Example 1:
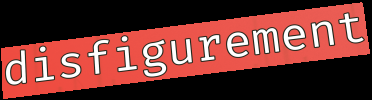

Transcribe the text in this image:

disfigurement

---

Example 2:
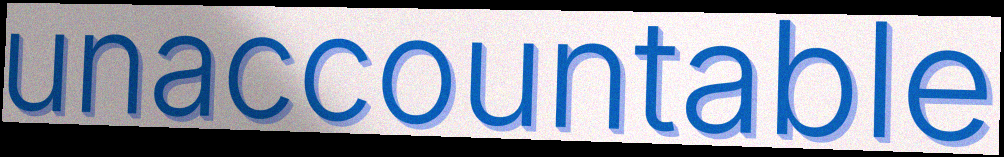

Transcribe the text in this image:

unaccountable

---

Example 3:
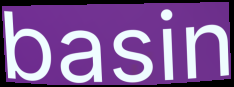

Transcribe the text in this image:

basin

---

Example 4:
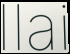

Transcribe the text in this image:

Ilai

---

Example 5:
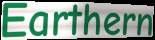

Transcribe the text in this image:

Earthern